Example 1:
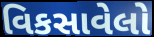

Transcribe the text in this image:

વિકસાવેલો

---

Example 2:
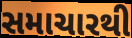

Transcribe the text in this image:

સમાચારથી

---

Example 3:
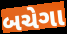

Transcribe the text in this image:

બચેગા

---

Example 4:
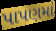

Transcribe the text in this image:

પાપણમાં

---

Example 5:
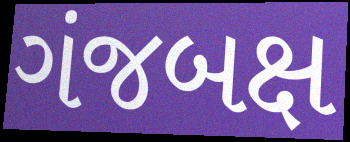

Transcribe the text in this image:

ગંજબક્ષ